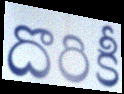
దొరికీ